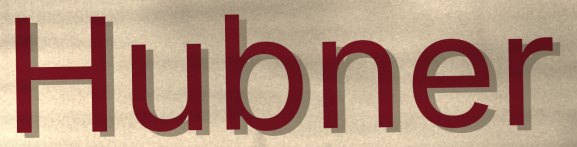
Hubner